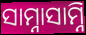
ସାମ୍ନାସାମ୍ନି